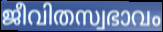
ജീവിതസ്വഭാവം